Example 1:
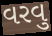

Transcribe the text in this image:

વરવુ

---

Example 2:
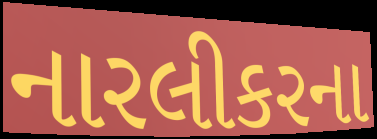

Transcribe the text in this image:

નારલીકરના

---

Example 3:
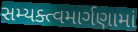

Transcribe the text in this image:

સમ્યક્ત્વમાર્ગણામાં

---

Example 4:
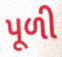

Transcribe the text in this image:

પૂળી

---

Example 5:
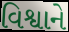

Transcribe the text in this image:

વિશ્વાને